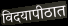
विदयापीठात